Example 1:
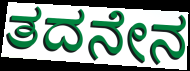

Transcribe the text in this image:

ತದನೇನ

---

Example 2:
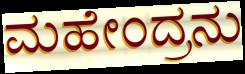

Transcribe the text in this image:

ಮಹೇಂದ್ರನು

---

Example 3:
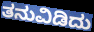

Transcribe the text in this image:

ತನುವಿಡಿದು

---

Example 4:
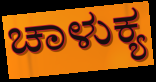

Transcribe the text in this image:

ಚಾಳುಕ್ಯ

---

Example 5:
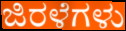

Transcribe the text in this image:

ಜಿರಳೆಗಳು